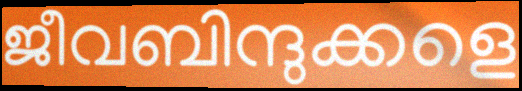
ജീവബിന്ദുക്കളെ